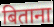
बिताना